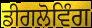
ਡੀਗਲੋਵਿੰਗ